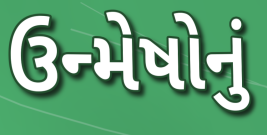
ઉન્મેષોનું